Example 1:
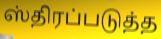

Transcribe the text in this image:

ஸ்திரப்படுத்த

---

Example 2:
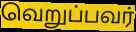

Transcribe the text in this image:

வெறுப்பவர்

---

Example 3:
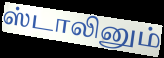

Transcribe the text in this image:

ஸ்டாலினும்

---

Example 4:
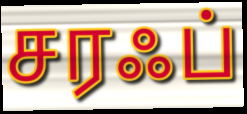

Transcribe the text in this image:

சரஃப்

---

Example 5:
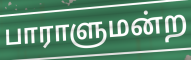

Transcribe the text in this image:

பாராளுமன்ற